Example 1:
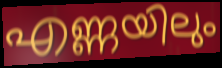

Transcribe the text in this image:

എണ്ണയിലും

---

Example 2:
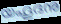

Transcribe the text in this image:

യഹൂദനു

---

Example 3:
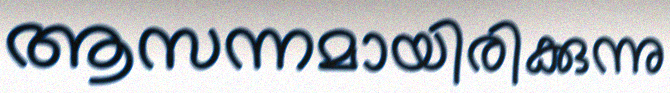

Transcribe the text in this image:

ആസന്നമായിരിക്കുന്നു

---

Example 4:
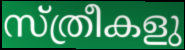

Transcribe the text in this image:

സ്ത്രീകളു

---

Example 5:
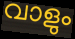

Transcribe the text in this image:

വാളും